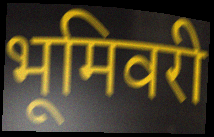
भूमिवरी